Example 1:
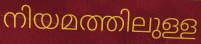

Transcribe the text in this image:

നിയമത്തിലുള്ള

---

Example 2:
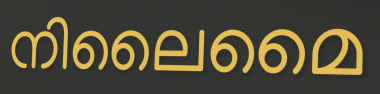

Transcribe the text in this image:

നിലൈമൈ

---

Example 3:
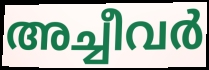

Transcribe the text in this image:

അച്ചീവർ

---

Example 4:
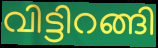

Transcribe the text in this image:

വിട്ടിറങ്ങി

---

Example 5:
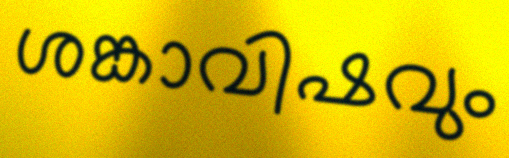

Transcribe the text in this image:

ശങ്കാവിഷവും